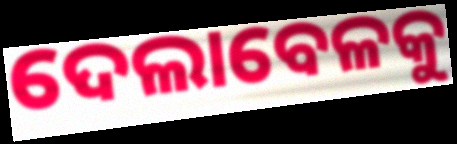
ଦେଲାବେଳକୁ